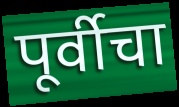
पूर्वीचा